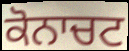
ਕੋਨਾਚਟ